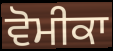
ਵੋਮੀਕਾ